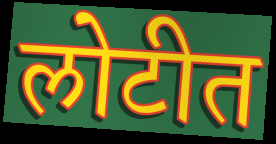
लोटीत